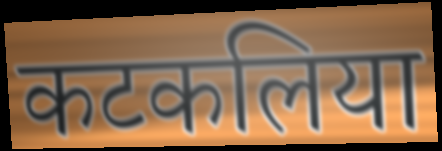
कटकलिया